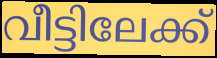
വീട്ടിലേക്ക്